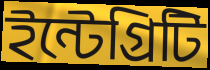
ইন্টেগ্রিটি